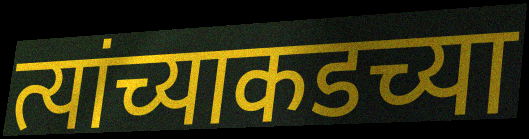
त्यांच्याकडच्या